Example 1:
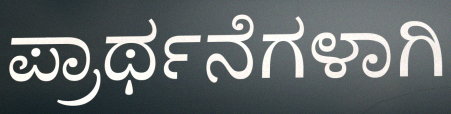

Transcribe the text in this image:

ಪ್ರಾರ್ಥನೆಗಳಾಗಿ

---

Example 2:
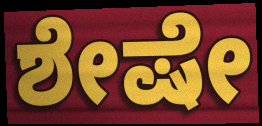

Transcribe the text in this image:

ಶೇಷೇ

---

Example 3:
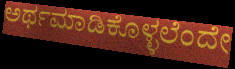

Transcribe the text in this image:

ಅರ್ಥಮಾಡಿಕೊಳ್ಳಲೆಂದೇ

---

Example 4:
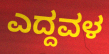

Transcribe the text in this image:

ಎದ್ದವಳ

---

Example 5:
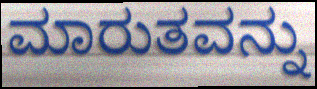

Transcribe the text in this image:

ಮಾರುತವನ್ನು